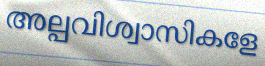
അല്പവിശ്വാസികളേ